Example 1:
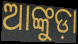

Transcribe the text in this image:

ଆଙ୍କୁଡ଼ା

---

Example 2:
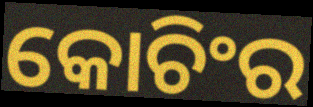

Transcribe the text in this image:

କୋଚିଂର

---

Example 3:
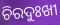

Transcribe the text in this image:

ଚିରଦୁଃଖୀ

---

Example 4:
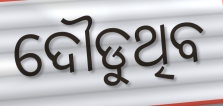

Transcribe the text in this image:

ଦୌଡୁଥିବ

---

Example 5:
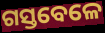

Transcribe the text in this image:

ଗସ୍ତବେଳେ